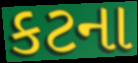
કટના